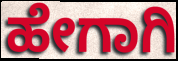
ಹೇಗಾಗಿ